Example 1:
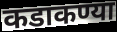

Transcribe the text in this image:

कडाकण्या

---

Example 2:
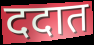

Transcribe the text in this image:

ददात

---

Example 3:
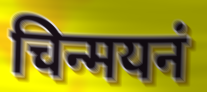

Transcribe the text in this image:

चिन्मयनं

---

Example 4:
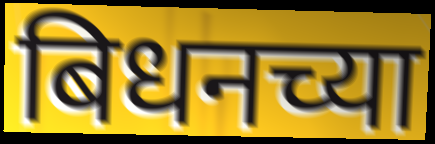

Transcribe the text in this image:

बिधनच्या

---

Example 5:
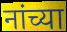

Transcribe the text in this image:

नांच्या